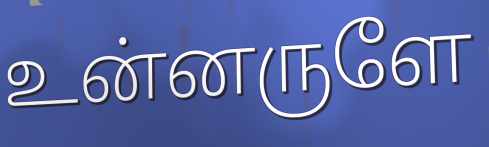
உன்னருளே